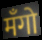
मँगो